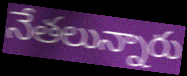
నేతలున్నారు